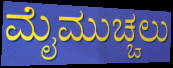
ಮೈಮುಚ್ಚಲು